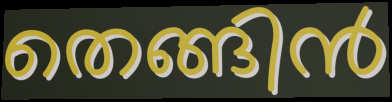
തെങ്ങിൻ